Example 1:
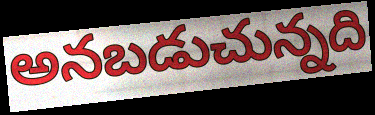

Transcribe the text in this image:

అనబడుచున్నది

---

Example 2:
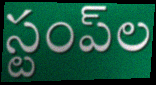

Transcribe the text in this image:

స్టంప్‌ల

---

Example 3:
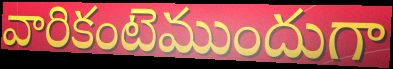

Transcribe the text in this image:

వారికంటెముందుగా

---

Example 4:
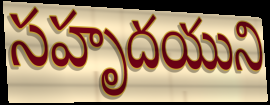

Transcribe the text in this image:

సహృదయుని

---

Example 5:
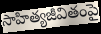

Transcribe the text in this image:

సాహిత్యజీవితంపై